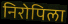
निरोपिला